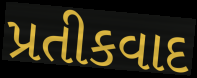
પ્રતીકવાદ